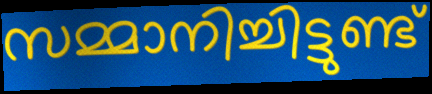
സമ്മാനിച്ചിട്ടുണ്ട്